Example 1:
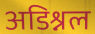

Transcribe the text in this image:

अडिश्नल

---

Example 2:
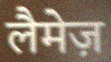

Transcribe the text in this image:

लैमेज़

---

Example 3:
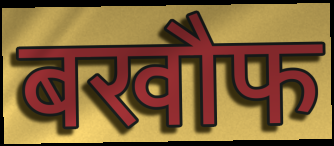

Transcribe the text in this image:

बखौफ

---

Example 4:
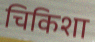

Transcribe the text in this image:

चिकिशा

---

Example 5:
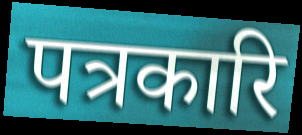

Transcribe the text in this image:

पत्रकारि